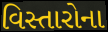
વિસ્તારોના